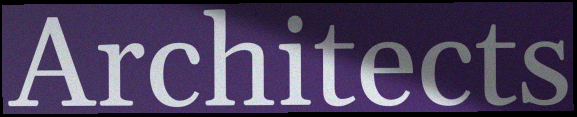
Architects